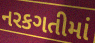
નરકગતીમાં